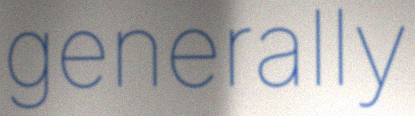
generally